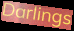
Darlings